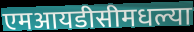
एमआयडीसीमधल्या